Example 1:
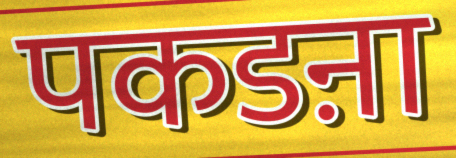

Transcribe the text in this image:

पकडऩा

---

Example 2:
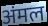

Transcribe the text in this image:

अंमल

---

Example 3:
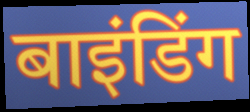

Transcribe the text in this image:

बाइंडिंग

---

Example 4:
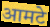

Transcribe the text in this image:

आमटे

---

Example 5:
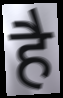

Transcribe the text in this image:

है